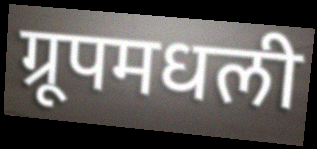
ग्रूपमधली